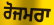
ਰੋਜਮਰਾ